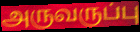
அருவருப்பு